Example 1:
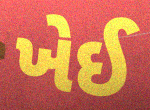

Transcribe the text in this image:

ખેઈ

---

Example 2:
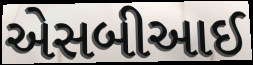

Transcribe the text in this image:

એસબીઆઈ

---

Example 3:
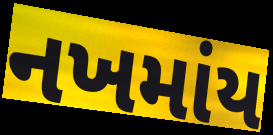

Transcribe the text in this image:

નખમાંય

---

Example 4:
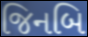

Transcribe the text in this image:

જિનબિ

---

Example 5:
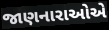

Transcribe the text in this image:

જાણનારાઓએ